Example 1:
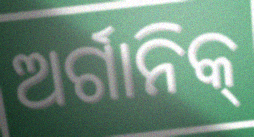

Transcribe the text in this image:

ଅର୍ଗାନିକ୍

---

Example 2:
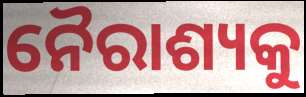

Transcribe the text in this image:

ନୈରାଶ୍ୟକୁ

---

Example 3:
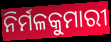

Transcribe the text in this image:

ନିର୍ମଳକୁମାରୀ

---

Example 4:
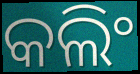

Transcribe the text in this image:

କଲିଂ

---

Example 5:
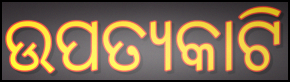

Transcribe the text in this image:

ଉପତ୍ୟକାଟି